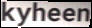
kyheen